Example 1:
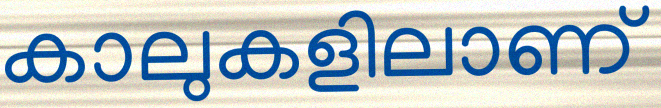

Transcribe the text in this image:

കാലുകളിലാണ്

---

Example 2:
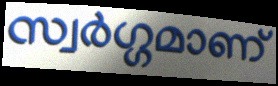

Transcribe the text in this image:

സ്വർഗ്ഗമാണ്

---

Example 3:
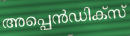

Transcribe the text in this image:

അപ്പെൻഡിക്സ്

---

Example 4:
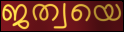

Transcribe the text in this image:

ജത്വയെ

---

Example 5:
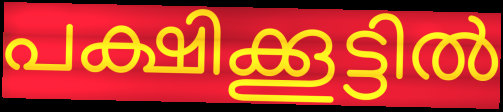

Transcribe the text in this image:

പക്ഷിക്കൂട്ടിൽ